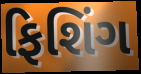
ફિશિંગ